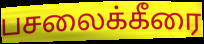
பசலைக்கீரை